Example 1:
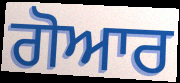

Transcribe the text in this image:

ਗੋਆਰ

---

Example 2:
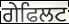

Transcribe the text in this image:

ਗੇਫਿਲਟ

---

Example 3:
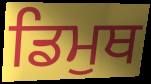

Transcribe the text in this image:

ਡਿਮੁਥ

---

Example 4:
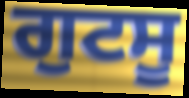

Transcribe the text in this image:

ਗੁਟਸੂ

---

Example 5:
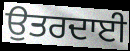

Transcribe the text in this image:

ਉਤਰਦਾਈ